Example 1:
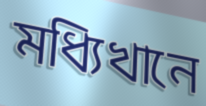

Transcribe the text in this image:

মধ্যিখানে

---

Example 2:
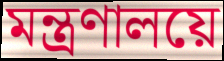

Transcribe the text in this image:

মন্ত্রণালয়ে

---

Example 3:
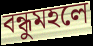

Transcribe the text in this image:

বন্ধুমহলে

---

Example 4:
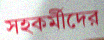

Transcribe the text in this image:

সহকর্মীদের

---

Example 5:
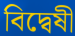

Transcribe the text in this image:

বিদ্বেষী